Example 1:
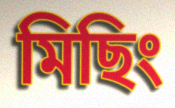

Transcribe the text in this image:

মিছিং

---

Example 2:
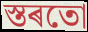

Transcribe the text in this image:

স্তৰতো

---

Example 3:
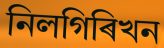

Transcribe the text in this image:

নিলগিৰিখন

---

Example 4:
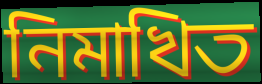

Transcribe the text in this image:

নিমাখিত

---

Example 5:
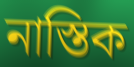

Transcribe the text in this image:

নাস্তিক